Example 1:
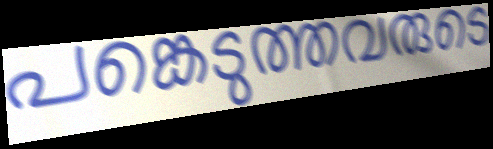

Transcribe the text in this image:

പങ്കെടുത്തവരുടെ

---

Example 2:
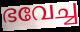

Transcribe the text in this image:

ഭവേച്ച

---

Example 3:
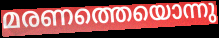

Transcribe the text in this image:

മരണത്തെയൊന്നു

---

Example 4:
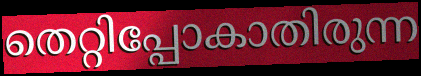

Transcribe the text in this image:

തെറ്റിപ്പോകാതിരുന്ന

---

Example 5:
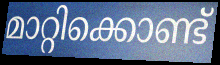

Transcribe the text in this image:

മാറ്റിക്കൊണ്ട്